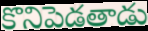
కొనిపెడతాడు